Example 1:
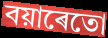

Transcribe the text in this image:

বয়াৰেতো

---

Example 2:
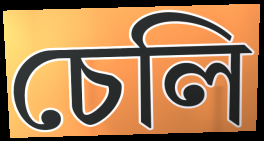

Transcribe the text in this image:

চেলি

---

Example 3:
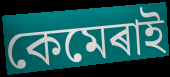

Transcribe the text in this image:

কেমেৰাই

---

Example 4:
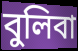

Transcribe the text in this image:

বুলিবা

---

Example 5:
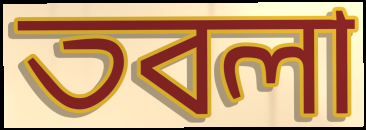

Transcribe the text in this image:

তবলা